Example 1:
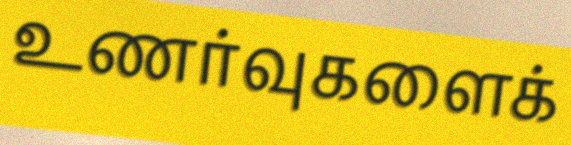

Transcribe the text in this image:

உணர்வுகளைக்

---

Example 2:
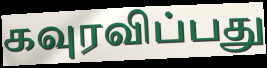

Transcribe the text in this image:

கவுரவிப்பது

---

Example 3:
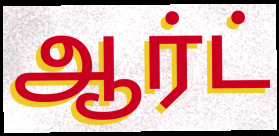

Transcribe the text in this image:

ஆர்ட்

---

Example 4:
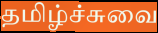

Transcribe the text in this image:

தமிழ்ச்சுவை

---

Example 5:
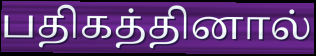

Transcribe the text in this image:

பதிகத்தினால்